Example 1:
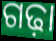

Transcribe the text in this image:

ଗଢ଼ା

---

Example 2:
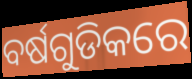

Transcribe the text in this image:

ବର୍ଷଗୁଡିକରେ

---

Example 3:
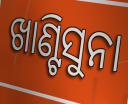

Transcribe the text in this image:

ଖାଣ୍ଟିସୁନା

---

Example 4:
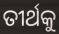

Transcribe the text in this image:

ତୀର୍ଥକୁ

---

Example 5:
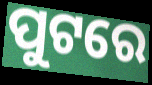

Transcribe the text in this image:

ପୁଟରେ